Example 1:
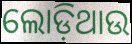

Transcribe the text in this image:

ଲୋଡ଼ିଥାଉ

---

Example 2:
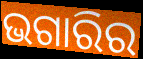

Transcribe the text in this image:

ଭଗାରିର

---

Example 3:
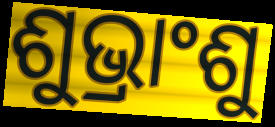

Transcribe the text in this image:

ଶୁଭ୍ରାଂଶୁ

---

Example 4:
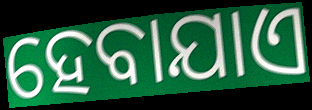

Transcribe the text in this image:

ହେବାଯାଏ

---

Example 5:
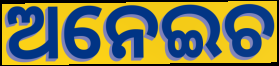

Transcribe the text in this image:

ଅନେଇଚ